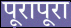
पूरापूरा